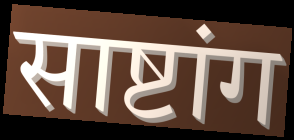
साष्टांग